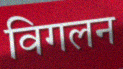
विगलन